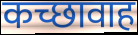
कच्छावाह